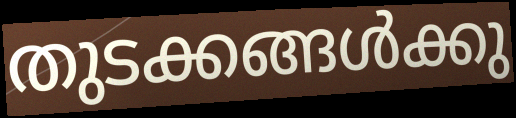
തുടക്കങ്ങൾക്കു